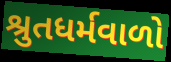
શ્રુતધર્મવાળો